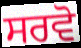
ਸਰਵੋ